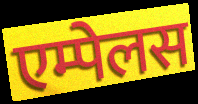
एम्पेलस